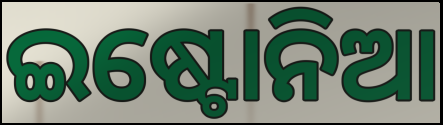
ଇଷ୍ଟୋନିଆ